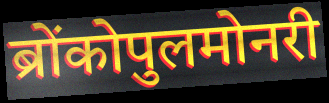
ब्रोंकोपुलमोनरी